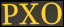
PXO